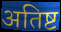
अतिष्ट